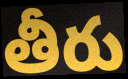
తీరు